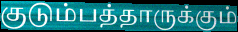
குடும்பத்தாருக்கும்